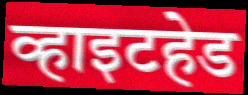
व्हाइटहेड